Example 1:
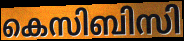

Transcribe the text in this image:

കെസിബിസി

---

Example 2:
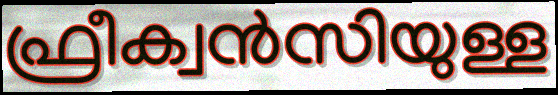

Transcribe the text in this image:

ഫ്രീക്വൻസിയുള്ള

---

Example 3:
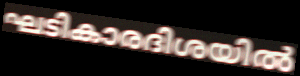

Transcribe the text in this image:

ഘടികാരദിശയിൽ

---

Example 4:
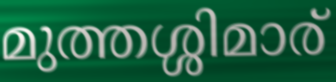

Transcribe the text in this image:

മുത്തശ്ശിമാര്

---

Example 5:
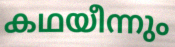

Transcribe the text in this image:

കഥയീന്നും